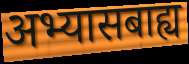
अभ्यासबाह्य